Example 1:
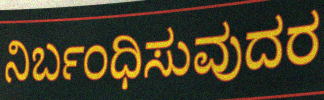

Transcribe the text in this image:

ನಿರ್ಬಂಧಿಸುವುದರ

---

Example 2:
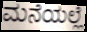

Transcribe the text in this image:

ಮನೆಯಲ್ಲೆ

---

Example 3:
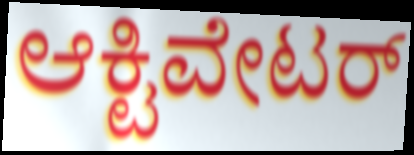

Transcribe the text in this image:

ಆಕ್ಟಿವೇಟರ್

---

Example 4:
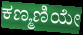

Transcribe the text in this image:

ಕಣ್ಮಣಿಯೇ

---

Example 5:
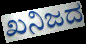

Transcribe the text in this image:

ಖನಿಜದ